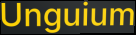
Unguium